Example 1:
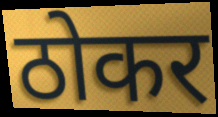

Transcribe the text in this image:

ठोकर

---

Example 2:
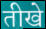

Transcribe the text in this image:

तीखे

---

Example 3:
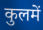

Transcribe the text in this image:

कुलमें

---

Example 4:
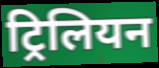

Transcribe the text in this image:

ट्रिलियन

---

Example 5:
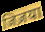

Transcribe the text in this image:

जिज़या